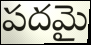
పదమై